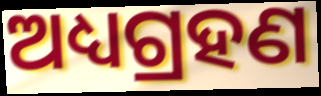
ଅଧ୍ୟଗ୍ରହଣ